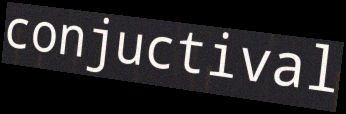
conjuctival